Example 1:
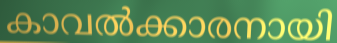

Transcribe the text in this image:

കാവൽക്കാരനായി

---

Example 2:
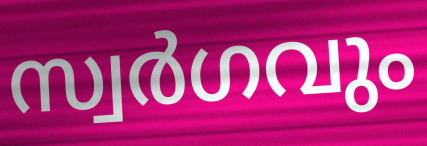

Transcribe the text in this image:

സ്വർഗവും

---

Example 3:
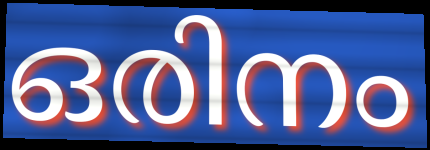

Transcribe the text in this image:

ഒരിനം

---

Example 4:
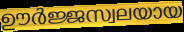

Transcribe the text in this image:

ഊർജ്ജസ്വലയായ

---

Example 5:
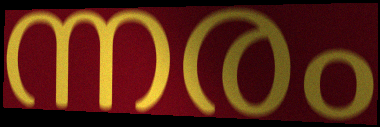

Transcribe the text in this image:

ന്നരം